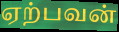
ஏற்பவன்